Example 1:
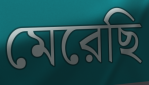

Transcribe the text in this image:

মেরেছি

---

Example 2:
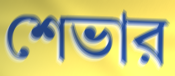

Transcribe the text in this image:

শেভার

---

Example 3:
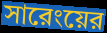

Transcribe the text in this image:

সারেংয়ের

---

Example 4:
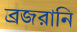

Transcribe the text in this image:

ব্রজরানি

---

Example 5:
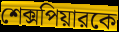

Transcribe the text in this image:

শেক্সপিয়ারকে